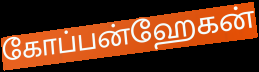
கோப்பன்ஹேகன்